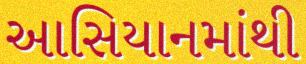
આસિયાનમાંથી